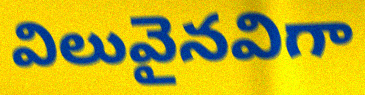
విలువైనవిగా